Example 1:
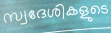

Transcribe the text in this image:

സ്വദേശികളുടെ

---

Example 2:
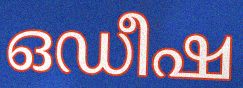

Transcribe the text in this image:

ഒഡീഷ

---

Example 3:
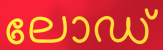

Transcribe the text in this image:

ലോഡ്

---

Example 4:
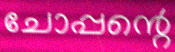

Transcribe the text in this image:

ചോപ്പന്റെ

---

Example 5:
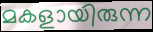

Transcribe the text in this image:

മകളായിരുന്ന